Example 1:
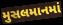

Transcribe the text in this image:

મુસલમાનમાં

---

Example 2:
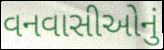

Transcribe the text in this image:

વનવાસીઓનું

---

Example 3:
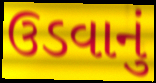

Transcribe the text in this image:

ઉડવાનું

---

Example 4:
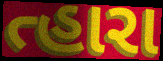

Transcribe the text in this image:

ત્હારા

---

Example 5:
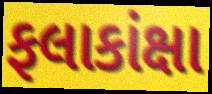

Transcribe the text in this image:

ફલાકાંક્ષા